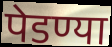
पेडण्या